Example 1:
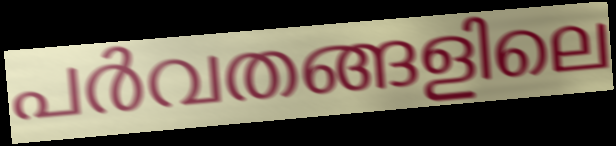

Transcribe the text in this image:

പർവതങ്ങളിലെ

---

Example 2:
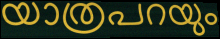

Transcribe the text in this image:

യാത്രപറയും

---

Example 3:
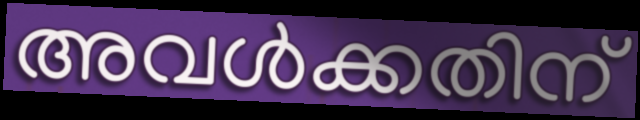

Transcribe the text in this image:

അവൾക്കതിന്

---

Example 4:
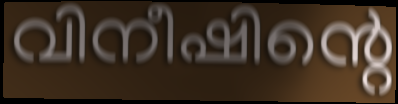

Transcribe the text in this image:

വിനീഷിന്റെ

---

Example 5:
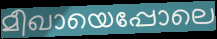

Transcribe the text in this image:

മീഖായെപ്പോലെ